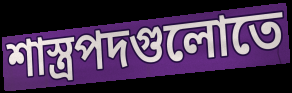
শাস্ত্রপদগুলোতে